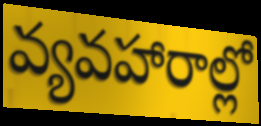
వ్యవహారాల్లో